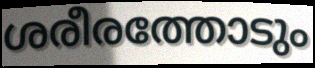
ശരീരത്തോടും